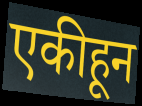
एकीहून